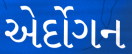
એર્દોગન